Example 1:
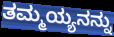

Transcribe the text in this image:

ತಮ್ಮಯ್ಯನನ್ನು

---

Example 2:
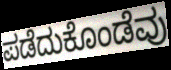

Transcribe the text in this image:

ಪಡೆದುಕೊಂಡೆವು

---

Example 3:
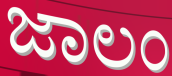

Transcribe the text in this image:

ಜಾಲಂ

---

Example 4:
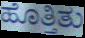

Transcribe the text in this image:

ಹೊತ್ತಿತು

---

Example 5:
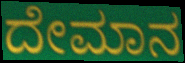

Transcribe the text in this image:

ದೇಮಾನ